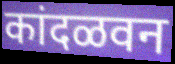
कांदळवन